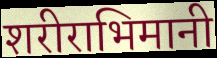
शरीराभिमानी